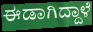
ಈಡಾಗಿದ್ದಾಳೆ